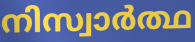
നിസ്വാർത്ഥ